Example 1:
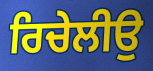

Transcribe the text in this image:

ਰਿਚੇਲੀਉ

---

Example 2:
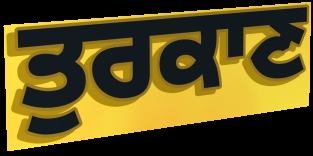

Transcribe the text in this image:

ਤੁਰਕਾਣ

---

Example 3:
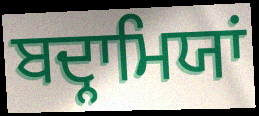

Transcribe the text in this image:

ਬਦ੍ਨਾਮਿਯਾਂ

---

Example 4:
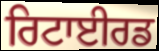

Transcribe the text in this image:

ਰਿਟਾਈਰਡ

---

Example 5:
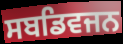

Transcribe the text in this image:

ਸਬਡਿਵਜਨ